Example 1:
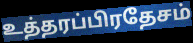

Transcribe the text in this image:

உத்தரப்பிரதேசம்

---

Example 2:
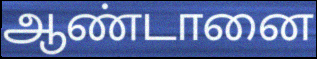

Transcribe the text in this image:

ஆண்டானை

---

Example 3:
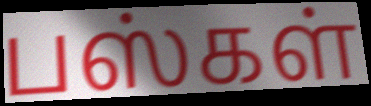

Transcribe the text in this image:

பஸ்கள்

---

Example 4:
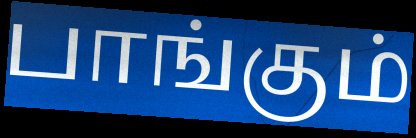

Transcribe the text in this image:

பாங்கும்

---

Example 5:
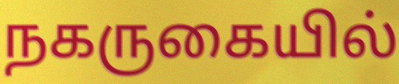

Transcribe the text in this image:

நகருகையில்